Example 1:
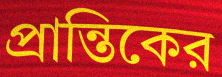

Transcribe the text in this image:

প্রান্তিকের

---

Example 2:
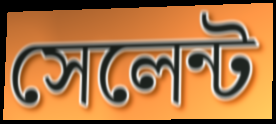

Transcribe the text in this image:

সেলেন্ট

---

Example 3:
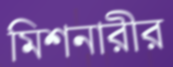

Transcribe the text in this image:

মিশনারীর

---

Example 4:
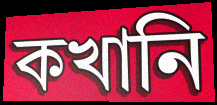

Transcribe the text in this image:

কখানি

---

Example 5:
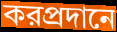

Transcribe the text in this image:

করপ্রদানে